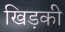
खिड़की